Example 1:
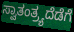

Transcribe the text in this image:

ಸ್ವಾತಂತ್ರ್ಯದೆಡೆಗೆ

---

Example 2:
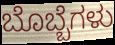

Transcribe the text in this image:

ಬೊಬ್ಬೆಗಳು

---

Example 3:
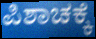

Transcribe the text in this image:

ಪಿಶಾಚಕ್ಕೆ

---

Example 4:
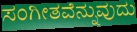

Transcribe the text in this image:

ಸಂಗೀತವೆನ್ನುವುದು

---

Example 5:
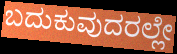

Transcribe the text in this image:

ಬದುಕುವುದರಲ್ಲೇ